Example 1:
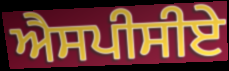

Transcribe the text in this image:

ਐਸਪੀਸੀਏ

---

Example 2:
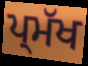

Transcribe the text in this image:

ਪ੍ਮੱਖ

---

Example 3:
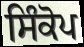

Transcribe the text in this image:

ਸਿੰਕੋਪ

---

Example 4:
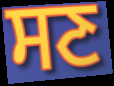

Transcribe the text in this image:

ਸਣ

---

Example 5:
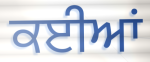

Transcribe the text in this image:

ਕਈਆਂ